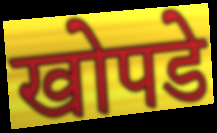
खोपडे